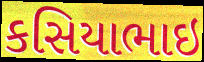
કસિયાભાઇ